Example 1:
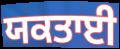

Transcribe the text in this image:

ਯਕਤਾਈ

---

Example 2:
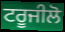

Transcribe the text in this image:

ਟਰੂਜੀਲੋ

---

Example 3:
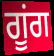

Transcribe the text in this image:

ਗੂਂਗ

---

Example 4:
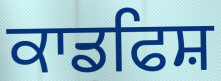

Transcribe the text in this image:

ਕਾਡਫਿਸ਼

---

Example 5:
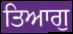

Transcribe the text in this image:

ਤਿਆਗੁ